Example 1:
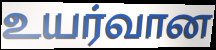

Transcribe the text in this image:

உயர்வான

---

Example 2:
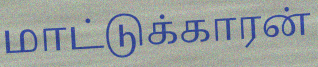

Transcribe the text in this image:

மாட்டுக்காரன்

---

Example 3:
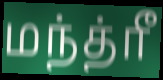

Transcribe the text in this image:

மந்த்ரீ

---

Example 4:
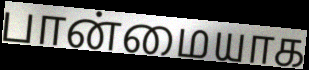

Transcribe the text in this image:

பான்மையாக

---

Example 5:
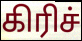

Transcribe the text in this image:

கிரிச்